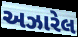
અઝારેલ